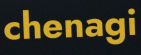
chenagi